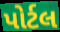
પોર્ટલ